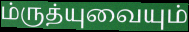
ம்ருத்யுவையும்